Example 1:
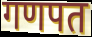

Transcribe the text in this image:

गणपत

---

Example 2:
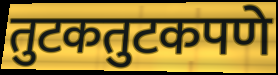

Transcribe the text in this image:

तुटकतुटकपणे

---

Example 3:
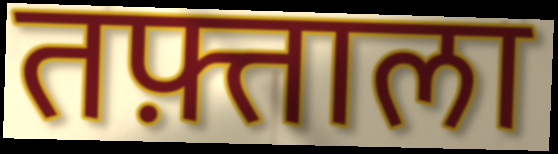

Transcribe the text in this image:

तफ़्ताला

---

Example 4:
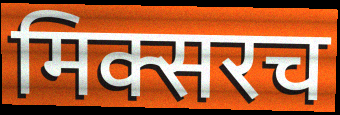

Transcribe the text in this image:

मिक्सरच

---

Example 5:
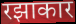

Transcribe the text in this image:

रझाकार